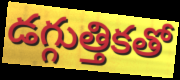
డగ్గుత్తికతో